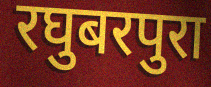
रघुबरपुरा